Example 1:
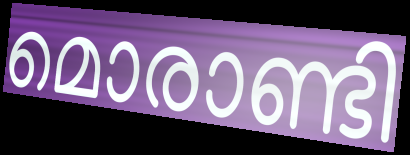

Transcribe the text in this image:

മൊരാണ്ടി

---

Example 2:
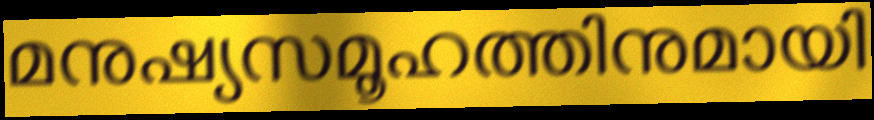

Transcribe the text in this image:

മനുഷ്യസമൂഹത്തിനുമായി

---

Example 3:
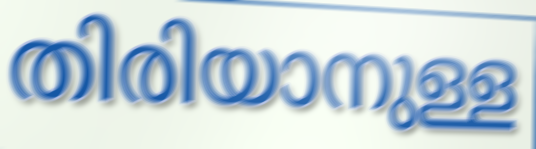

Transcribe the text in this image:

തിരിയാനുള്ള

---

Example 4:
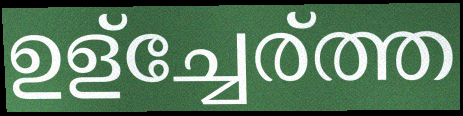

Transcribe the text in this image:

ഉള്ച്ചേര്ത്ത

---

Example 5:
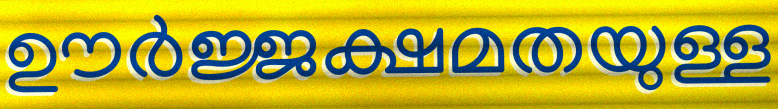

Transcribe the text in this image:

ഊർജ്ജക്ഷമതയുള്ള